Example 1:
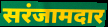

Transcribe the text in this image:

सरंजामदार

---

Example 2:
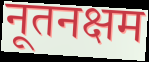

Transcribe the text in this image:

नूतनक्षम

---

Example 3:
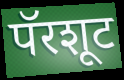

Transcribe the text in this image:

पॅरशूट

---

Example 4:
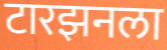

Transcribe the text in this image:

टारझनला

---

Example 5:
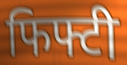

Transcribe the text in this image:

फिफ्टी